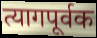
त्यागपूर्वक